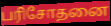
பரிசோதனை